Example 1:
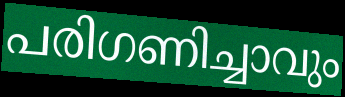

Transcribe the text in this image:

പരിഗണിച്ചാവും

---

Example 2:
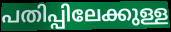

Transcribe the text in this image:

പതിപ്പിലേക്കുള്ള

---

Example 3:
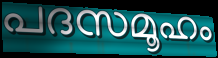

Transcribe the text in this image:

പദസമൂഹം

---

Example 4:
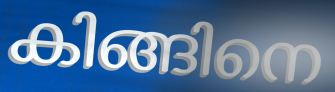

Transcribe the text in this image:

കിങ്ങിനെ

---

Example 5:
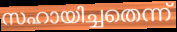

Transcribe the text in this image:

സഹായിച്ചതെന്ന്